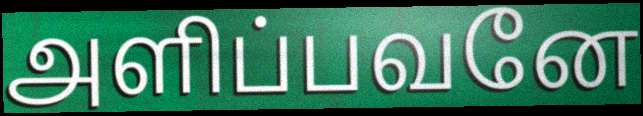
அளிப்பவனே